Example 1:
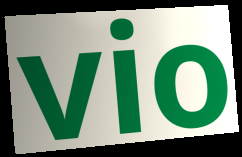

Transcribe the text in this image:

vio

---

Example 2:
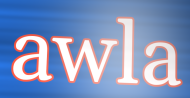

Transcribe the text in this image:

awla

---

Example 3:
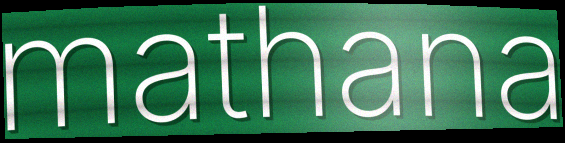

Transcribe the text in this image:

mathana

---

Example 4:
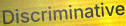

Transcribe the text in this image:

Discriminative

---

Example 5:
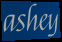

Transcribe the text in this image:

ashey